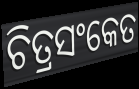
ଚିତ୍ରସଂକେତ